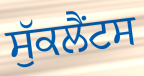
ਸੁੱਕਲੈਂਟਸ